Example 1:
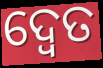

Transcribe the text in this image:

ଦ୍ବେତ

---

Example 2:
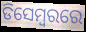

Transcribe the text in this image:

ଡିସେମ୍ବରରେ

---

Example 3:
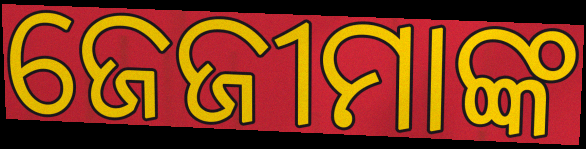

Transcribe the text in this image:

ଜେଜୀମାଙ୍କ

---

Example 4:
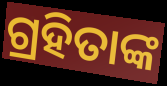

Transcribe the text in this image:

ଗ୍ରହିତାଙ୍କ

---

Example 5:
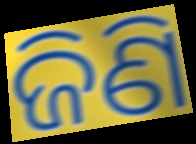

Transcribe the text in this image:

ଜିଣି